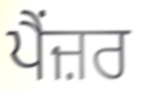
ਪੈਂਜ਼ਰ